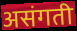
असंगती